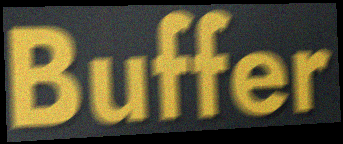
Buffer